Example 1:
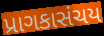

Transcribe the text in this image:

પ્રાગકાસંચય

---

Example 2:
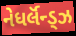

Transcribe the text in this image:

નેધર્લૅન્ડ્ઝ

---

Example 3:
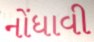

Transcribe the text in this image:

નોંધાવી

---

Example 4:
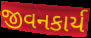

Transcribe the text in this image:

જીવનકાર્ય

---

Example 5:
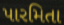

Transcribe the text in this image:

પારમિતા